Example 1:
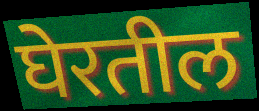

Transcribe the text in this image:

घेरतील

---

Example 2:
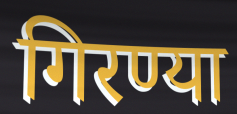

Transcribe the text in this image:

गिरण्या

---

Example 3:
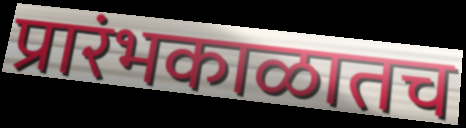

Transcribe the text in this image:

प्रारंभकाळातच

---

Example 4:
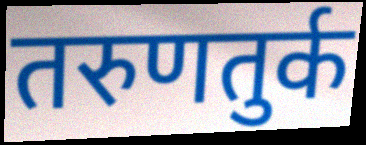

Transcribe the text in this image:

तरुणतुर्क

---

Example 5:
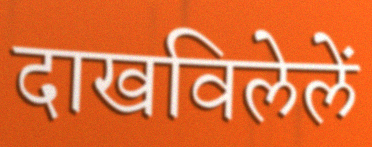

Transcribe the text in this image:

दाखविलेलें